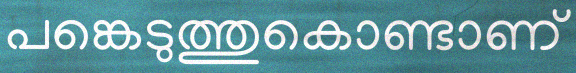
പങ്കെടുത്തുകൊണ്ടാണ്